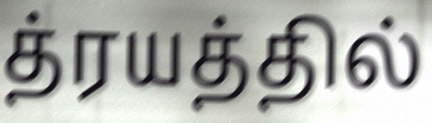
த்ரயத்தில்